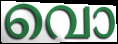
വൊ